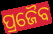
ପ୍ରଜୈବ